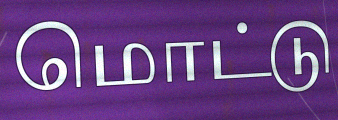
மொட்டு